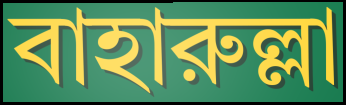
বাহারুল্লা